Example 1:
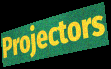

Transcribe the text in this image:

Projectors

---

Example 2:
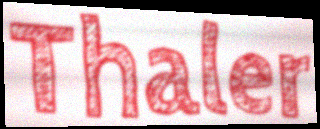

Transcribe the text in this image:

Thaler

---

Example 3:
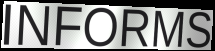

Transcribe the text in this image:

INFORMS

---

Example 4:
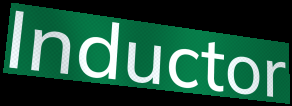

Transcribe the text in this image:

Inductor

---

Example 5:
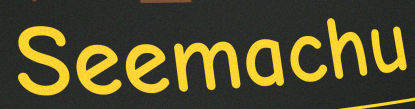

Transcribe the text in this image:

Seemachu